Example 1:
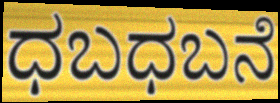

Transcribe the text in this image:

ಧಬಧಬನೆ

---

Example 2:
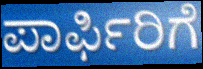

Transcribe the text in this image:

ಪಾರ್ಫಿರಿಗೆ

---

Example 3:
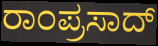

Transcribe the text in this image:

ರಾಂಪ್ರಸಾದ್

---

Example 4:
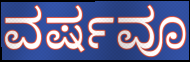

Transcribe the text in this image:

ವರ್ಷವೂ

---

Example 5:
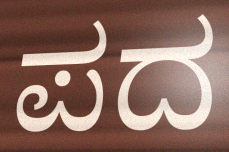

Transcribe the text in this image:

ಪದ